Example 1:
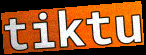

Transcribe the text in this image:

tiktu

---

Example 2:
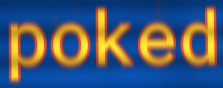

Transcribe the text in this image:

poked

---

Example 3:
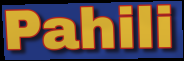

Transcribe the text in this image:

Pahili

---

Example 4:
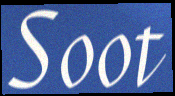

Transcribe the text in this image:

Soot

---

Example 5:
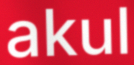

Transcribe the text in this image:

akul